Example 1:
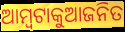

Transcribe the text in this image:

ଆମ୍ବଟାକୁଆଜନିତ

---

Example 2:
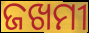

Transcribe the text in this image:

ଜଖମୀ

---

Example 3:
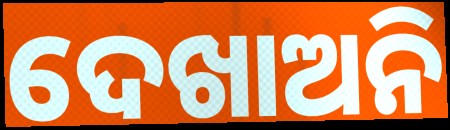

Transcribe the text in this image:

ଦେଖାଅନି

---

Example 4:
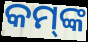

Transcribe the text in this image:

କମ୍‌ଙ୍କ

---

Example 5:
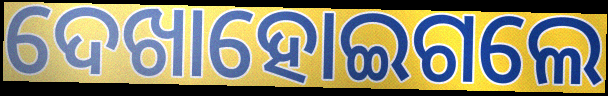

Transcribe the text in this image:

ଦେଖାହୋଇଗଲେ